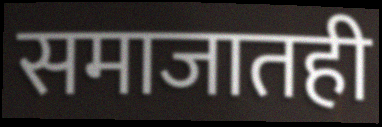
समाजातही